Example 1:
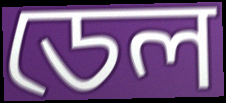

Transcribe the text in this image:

ডেল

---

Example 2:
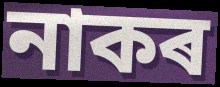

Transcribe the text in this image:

নাকৰ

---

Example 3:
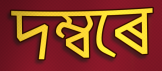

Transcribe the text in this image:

দম্বৰে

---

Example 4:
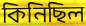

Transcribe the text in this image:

কিনিছিল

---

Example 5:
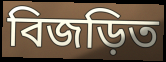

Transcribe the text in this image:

বিজড়িত